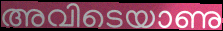
അവിടെയാണു